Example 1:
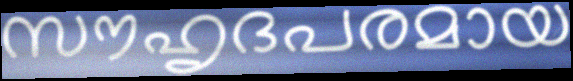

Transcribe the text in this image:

സൗഹൃദപരമായ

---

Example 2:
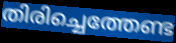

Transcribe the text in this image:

തിരിച്ചെത്തേണ്ട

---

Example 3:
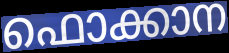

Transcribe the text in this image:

ഫൊക്കാന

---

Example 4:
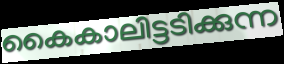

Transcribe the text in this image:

കൈകാലിട്ടടിക്കുന്ന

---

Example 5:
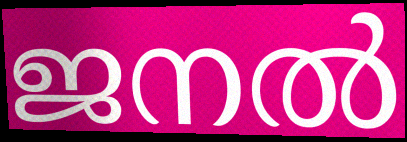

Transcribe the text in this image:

ജനൽ